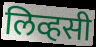
लिव्हसी